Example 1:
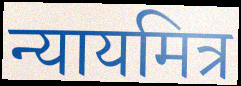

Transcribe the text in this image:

न्यायमित्र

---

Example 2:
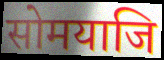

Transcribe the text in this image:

सोमयाजि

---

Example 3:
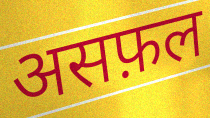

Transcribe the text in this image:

असफ़ल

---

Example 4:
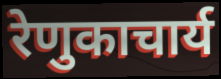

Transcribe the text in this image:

रेणुकाचार्य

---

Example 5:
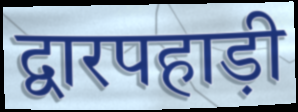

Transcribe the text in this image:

द्वारपहाड़ी